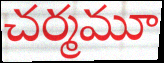
చర్మమూ